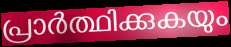
പ്രാർത്ഥിക്കുകയും